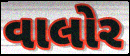
વાલોર